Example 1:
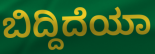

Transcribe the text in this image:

ಬಿದ್ದಿದೆಯಾ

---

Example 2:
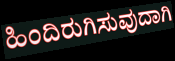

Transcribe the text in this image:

ಹಿಂದಿರುಗಿಸುವುದಾಗಿ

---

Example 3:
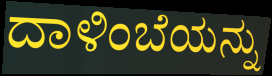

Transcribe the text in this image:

ದಾಳಿಂಬೆಯನ್ನು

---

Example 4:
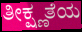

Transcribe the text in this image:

ತೀಕ್ಷ್ಣತೆಯ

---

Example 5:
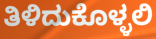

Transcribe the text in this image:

ತಿಳಿದುಕೊಳ್ಳಲಿ